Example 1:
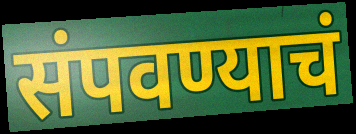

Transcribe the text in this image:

संपवण्याचं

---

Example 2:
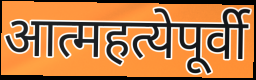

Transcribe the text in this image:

आत्महत्येपूर्वी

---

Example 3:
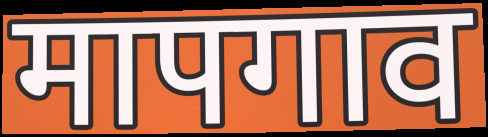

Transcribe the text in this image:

मापगाव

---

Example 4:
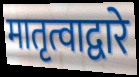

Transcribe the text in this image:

मातृत्वाद्वारे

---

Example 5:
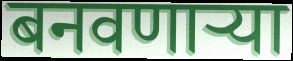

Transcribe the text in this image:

बनवणार्‍या